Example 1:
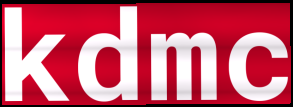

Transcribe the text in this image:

kdmc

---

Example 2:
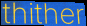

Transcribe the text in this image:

thither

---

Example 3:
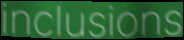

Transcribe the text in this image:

inclusions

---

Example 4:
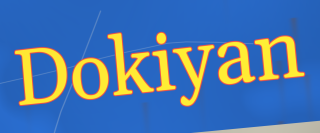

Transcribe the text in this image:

Dokiyan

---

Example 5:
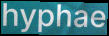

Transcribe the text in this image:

hyphae